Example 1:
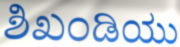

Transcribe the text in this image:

ಶಿಖಂಡಿಯು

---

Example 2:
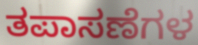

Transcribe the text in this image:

ತಪಾಸಣೆಗಳ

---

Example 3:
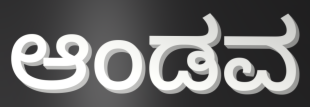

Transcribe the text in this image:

ಆಂಡವ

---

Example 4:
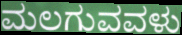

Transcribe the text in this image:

ಮಲಗುವವಳು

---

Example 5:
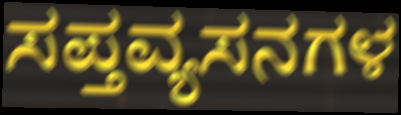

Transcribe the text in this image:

ಸಪ್ತವ್ಯಸನಗಳ